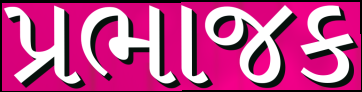
પ્રભાજક